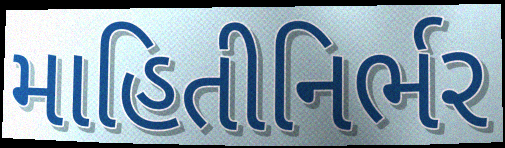
માહિતીનિર્ભર